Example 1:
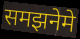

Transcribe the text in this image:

समझनेमे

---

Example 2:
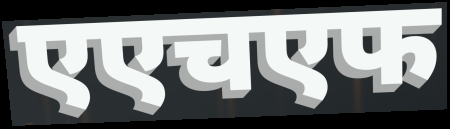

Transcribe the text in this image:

एएचएफ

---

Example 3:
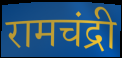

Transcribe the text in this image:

रामचंद्री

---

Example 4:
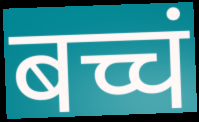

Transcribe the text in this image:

बच्चं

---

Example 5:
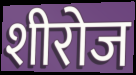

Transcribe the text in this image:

शीरोज